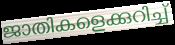
ജാതികളെക്കുറിച്ച്